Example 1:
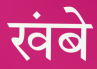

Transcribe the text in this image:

खंबे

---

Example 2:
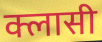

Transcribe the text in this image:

क्लासी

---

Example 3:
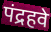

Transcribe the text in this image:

पंद्रहवे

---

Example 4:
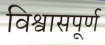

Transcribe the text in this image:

विश्वासपूर्ण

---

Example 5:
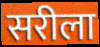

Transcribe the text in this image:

सरीला